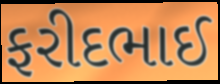
ફરીદભાઈ